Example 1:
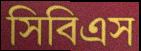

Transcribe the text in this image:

সিবিএস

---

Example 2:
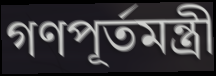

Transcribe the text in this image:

গণপূর্তমন্ত্রী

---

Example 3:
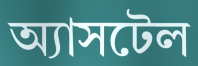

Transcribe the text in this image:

অ্যাসটেল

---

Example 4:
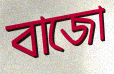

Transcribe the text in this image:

বাজো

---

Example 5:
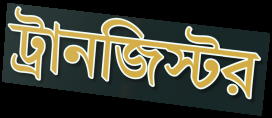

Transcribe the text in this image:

ট্রানজিস্টর